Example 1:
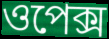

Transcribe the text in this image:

ওপেক্স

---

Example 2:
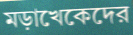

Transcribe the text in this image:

মড়াখেকেদের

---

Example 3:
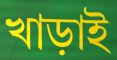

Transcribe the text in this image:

খাড়াই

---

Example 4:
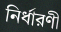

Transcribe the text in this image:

নির্ধারণী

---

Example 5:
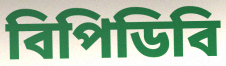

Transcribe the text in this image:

বিপিডিবি